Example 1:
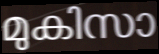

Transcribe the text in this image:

മുകിസാ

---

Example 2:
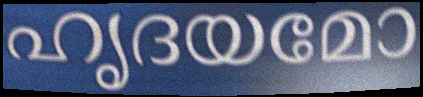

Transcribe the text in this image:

ഹൃദയമോ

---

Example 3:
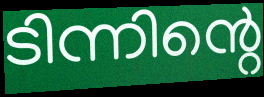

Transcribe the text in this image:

ടിന്നിന്റെ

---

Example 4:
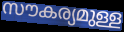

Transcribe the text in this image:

സൗകര്യമുള്ള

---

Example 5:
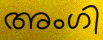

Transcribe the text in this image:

അംഗി